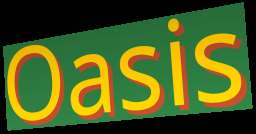
Oasis